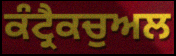
ਕੰਟ੍ਰੈਕਚੁਅਲ